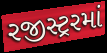
રજીસ્ટ્રરમાં